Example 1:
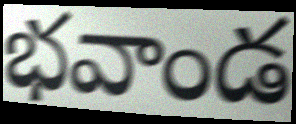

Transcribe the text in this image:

భవాండ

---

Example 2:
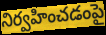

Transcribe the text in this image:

నిర్వహించడంపై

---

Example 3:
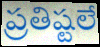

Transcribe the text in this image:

ప్రతిష్టలే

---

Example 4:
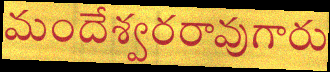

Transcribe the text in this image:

మందేశ్వరరావుగారు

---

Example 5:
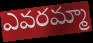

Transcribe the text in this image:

ఎవరమ్మా